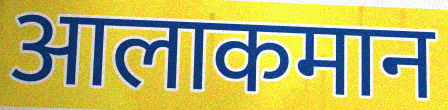
आलाकमान